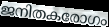
ജനിതകരോഗം